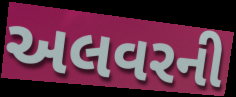
અલવરની